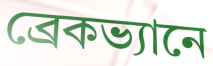
ব্রেকভ্যানে